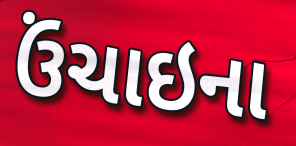
ઉંચાઇના